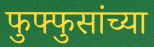
फुफ्फुसांच्या